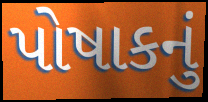
પોષાકનું